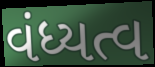
વંધ્યત્વ